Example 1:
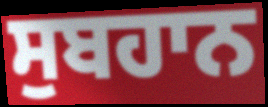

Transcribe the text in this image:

ਸੁਬਹਾਨ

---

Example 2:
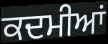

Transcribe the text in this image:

ਕਦਮੀਆਂ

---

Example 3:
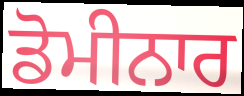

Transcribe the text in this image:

ਡੋਮੀਨਾਰ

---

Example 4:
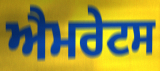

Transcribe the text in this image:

ਐਮਰੇਟਸ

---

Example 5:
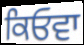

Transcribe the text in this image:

ਕਿਓਵਾ